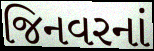
જિનવરનાં